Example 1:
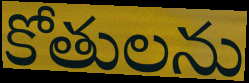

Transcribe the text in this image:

కోతులను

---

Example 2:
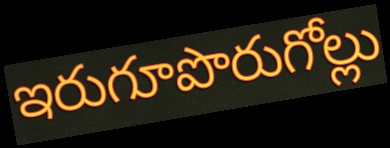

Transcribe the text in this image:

ఇరుగూపొరుగోల్లు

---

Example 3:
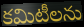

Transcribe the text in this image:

కమిటీలను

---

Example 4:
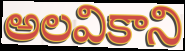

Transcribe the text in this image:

అలవికాని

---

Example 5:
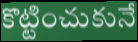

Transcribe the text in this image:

కొట్టించుకునే